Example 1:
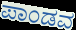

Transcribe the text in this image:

ಪಾಂಡವ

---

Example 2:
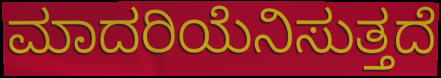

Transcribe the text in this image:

ಮಾದರಿಯೆನಿಸುತ್ತದೆ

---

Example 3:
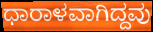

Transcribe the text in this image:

ಧಾರಾಳವಾಗಿದ್ದವು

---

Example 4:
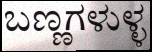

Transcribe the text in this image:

ಬಣ್ಣಗಳುಳ್ಳ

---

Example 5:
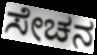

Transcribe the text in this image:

ಸೇಚನ